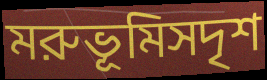
মরুভূমিসদৃশ